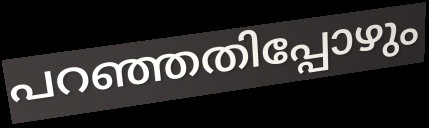
പറഞ്ഞതിപ്പോഴും